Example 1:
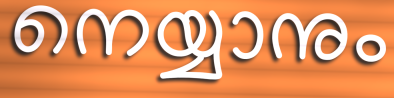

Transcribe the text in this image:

നെയ്യാനും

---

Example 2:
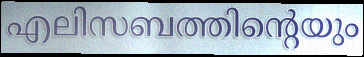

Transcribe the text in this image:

എലിസബത്തിന്റെയും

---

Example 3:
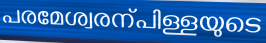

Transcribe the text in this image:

പരമേശ്വരന്പിള്ളയുടെ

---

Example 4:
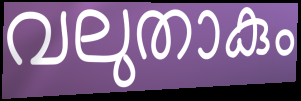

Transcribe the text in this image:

വലുതാകും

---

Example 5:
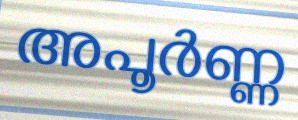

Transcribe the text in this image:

അപൂർണ്ണ